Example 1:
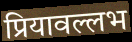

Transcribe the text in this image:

प्रियावल्लभ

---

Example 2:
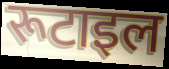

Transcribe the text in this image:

रूटाइल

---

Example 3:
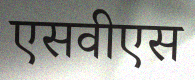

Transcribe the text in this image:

एसवीएस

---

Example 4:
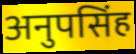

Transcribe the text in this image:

अनुपसिंह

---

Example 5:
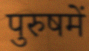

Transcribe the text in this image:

पुरुषमें